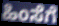
ಹಿಂಸೆಗೆ